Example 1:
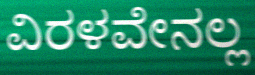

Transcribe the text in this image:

ವಿರಳವೇನಲ್ಲ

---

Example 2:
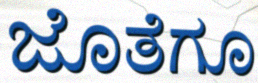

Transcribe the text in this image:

ಜೊತೆಗೂ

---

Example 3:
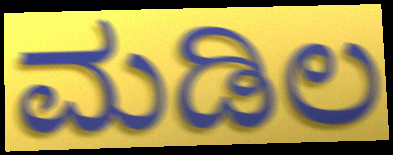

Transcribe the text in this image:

ಮಡಿಲ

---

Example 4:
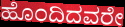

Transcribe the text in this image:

ಹೊಂದಿದವರೇ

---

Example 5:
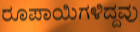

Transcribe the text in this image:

ರೂಪಾಯಿಗಳಿದ್ದವು